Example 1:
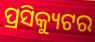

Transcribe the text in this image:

ପ୍ରସିକ୍ୟୁଟର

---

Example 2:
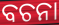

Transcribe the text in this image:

ବଚନା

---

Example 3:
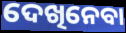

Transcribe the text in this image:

ଦେଖିନେବା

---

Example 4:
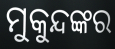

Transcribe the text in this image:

ମୁକୁନ୍ଦଙ୍କର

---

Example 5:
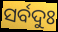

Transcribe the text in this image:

ସର୍ବଦୁଃ